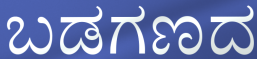
ಬಡಗಣದ